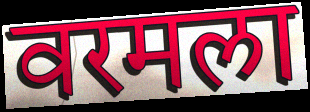
वरमला